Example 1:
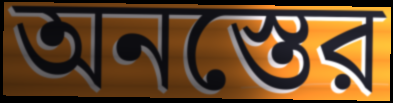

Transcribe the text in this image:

অনস্তের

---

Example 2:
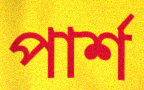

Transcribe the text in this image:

পার্শ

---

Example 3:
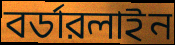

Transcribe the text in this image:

বর্ডারলাইন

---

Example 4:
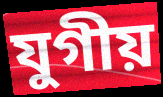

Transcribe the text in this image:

যুগীয়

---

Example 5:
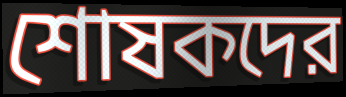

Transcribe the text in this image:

শোষকদের